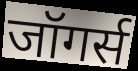
जॉगर्स